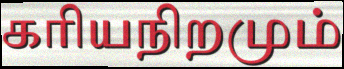
கரியநிறமும்